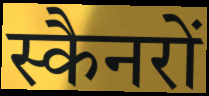
स्कैनरों